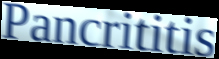
Pancrititis